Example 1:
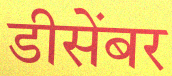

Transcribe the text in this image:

डीसेंबर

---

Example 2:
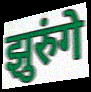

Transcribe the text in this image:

झुरुंगे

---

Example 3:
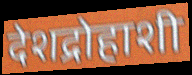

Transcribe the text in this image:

देशद्रोहाशी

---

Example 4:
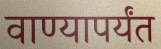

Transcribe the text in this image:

वाण्यापर्यंत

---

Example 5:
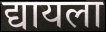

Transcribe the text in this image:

द्यायला